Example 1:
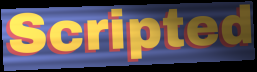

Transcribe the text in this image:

Scripted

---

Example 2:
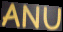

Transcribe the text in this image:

ANU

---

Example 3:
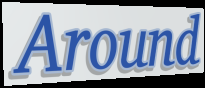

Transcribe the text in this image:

Around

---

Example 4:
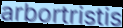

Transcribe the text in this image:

arbortristis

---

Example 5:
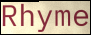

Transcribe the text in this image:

Rhyme